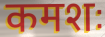
कमशः